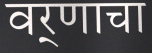
वर्णाचा